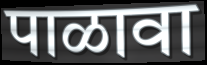
पाळावा